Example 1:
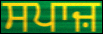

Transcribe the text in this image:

ਸਪਾਜ਼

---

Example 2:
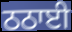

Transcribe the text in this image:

ਠਠਾਈ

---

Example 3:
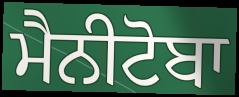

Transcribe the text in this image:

ਮੈਨੀਟੋਬਾ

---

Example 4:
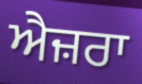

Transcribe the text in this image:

ਐਜ਼ਰਾ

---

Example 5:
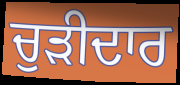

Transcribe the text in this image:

ਚੁੜੀਦਾਰ